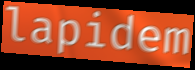
lapidem